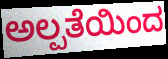
ಅಲ್ಪತೆಯಿಂದ